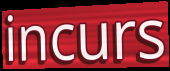
incurs